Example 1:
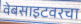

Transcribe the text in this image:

वेबसाइटवरचा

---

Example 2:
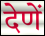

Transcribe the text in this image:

देणें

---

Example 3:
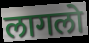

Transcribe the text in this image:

लागलो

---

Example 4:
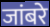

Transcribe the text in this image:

जांबरे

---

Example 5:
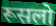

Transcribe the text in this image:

रूसलो